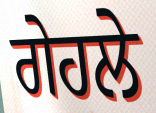
ਗੇਹਲੇ